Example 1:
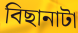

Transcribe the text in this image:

বিছানাটা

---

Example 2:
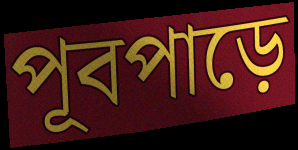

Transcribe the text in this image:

পূবপাড়ে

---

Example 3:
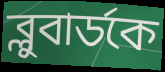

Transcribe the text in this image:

ব্লুবার্ডকে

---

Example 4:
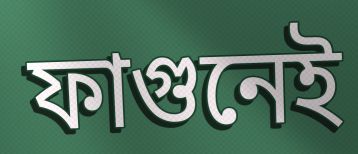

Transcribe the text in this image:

ফাগুনেই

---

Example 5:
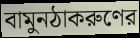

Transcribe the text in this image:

বামুনঠাকরুণের